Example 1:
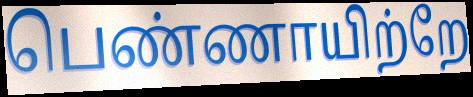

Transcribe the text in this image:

பெண்ணாயிற்றே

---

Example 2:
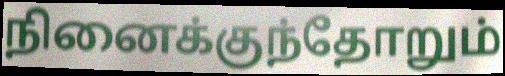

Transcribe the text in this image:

நினைக்குந்தோறும்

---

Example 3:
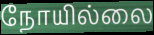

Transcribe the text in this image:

நோயில்லை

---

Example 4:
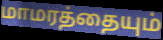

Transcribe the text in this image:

மாமரத்தையும்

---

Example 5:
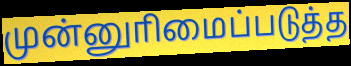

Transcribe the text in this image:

முன்னுரிமைப்படுத்த